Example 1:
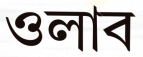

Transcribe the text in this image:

ওলাব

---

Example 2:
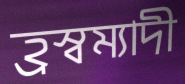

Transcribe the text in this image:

হ্ৰস্বম্যাদী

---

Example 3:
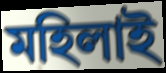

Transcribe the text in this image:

মহিলাই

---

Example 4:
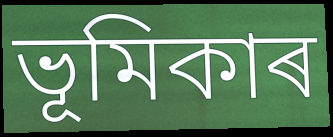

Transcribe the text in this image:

ভূমিকাৰ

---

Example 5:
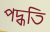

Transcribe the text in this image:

পদ্ধতি